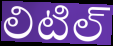
లిటిల్